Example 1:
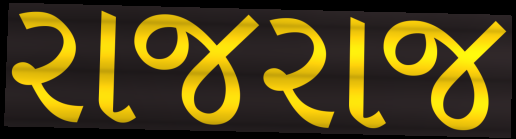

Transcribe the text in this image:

રાજરાજ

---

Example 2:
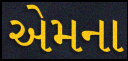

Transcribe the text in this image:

એમના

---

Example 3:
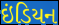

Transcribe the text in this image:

ઇંડિયન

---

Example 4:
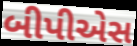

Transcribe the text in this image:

બીપીએસ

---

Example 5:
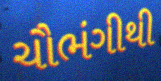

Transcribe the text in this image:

ચૌભંગીથી